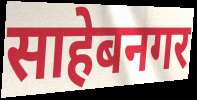
साहेबनगर